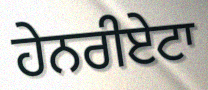
ਹੇਨਰੀਏਟਾ